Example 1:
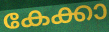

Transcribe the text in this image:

കേക്കാ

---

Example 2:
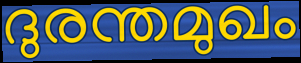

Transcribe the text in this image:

ദുരന്തമുഖം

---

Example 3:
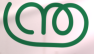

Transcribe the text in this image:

ന്ത്ര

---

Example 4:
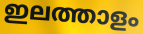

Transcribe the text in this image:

ഇലത്താളം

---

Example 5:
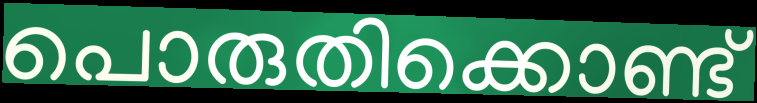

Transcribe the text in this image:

പൊരുതിക്കൊണ്ട്